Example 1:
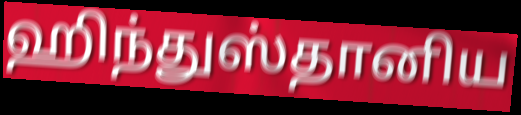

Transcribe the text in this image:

ஹிந்துஸ்தானிய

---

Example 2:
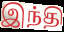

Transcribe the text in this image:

இந்தி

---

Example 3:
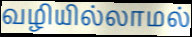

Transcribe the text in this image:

வழியில்லாமல்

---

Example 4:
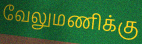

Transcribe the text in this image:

வேலுமணிக்கு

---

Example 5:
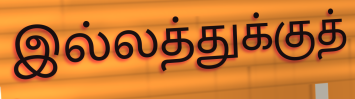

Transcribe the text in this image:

இல்லத்துக்குத்